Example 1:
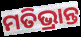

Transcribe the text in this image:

ମତିଭ୍ରାନ୍ତ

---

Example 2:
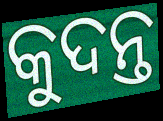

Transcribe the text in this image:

କୁଦନ୍ତ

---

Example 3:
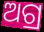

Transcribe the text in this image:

ଅଗ୍ର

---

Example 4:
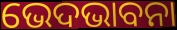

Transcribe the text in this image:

ଭେଦଭାବନା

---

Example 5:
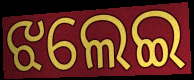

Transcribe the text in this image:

ଝଲେଇ